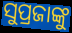
ସୁପ୍ରଜାଙ୍କୁ